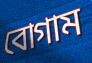
বোগাম